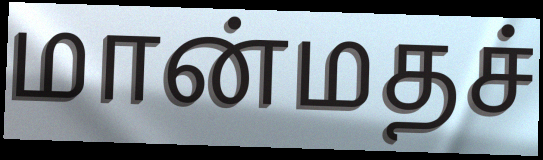
மான்மதச்